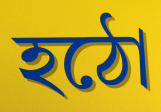
হঠো